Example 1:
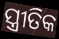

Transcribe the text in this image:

ସ୍ତ୍ରୀତିକ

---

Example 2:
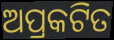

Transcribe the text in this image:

ଅପ୍ରକଟିତ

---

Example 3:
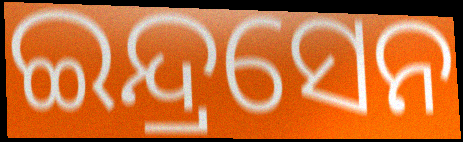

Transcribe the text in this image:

ଇନ୍ଦ୍ରସେନ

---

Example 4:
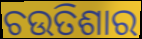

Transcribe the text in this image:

ଚଉତିଶାର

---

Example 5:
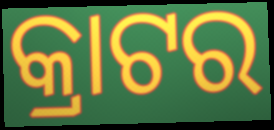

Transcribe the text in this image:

କ୍ରାଟର